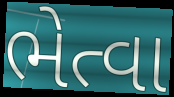
ભેત્વા